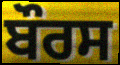
ਬੌਰਸ